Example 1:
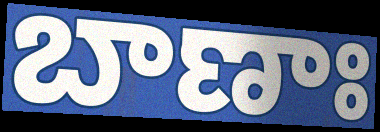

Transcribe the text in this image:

బాణాః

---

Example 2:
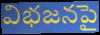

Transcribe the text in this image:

విభజనపై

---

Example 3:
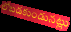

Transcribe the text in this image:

లోబడకుండునట్లు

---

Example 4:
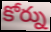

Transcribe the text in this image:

కోర్ను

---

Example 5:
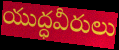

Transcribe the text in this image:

యుద్ధవీరులు